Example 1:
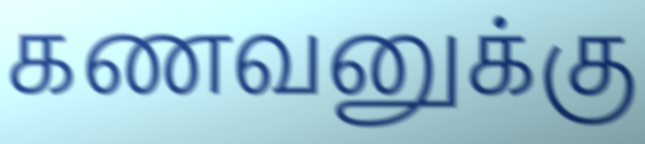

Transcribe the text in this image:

கணவனுக்கு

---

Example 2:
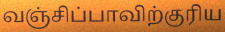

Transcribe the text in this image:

வஞ்சிப்பாவிற்குரிய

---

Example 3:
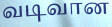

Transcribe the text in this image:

வடிவான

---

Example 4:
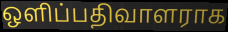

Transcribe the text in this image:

ஒளிப்பதிவாளராக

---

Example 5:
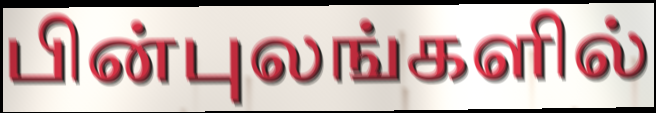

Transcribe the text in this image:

பின்புலங்களில்